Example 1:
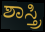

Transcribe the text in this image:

ಶಾಸ್ತ್ರಿ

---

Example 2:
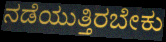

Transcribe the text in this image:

ನಡೆಯುತ್ತಿರಬೇಕು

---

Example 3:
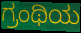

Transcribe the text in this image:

ಗ್ರಂಥಿಯ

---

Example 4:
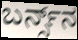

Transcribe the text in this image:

ಬರ್ನ್ಸ್‌ನ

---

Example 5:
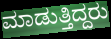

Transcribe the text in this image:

ಮಾಡುತ್ತಿದ್ದರು